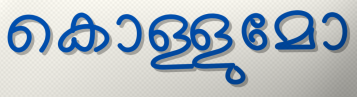
കൊള്ളുമോ